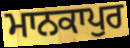
ਮਾਨਕਾਪੁਰ